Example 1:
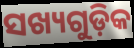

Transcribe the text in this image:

ସଖ୍ୟଗୁଡ଼ିକ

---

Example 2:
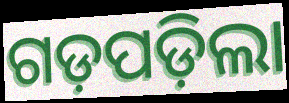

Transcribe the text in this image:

ଗଡ଼ପଡ଼ିଲା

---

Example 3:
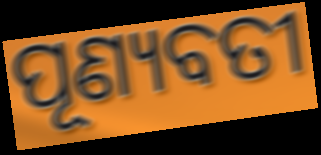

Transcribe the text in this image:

ପୂଣ୍ୟବତୀ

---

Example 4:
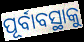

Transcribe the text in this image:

ପୂର୍ବାବସ୍ଥାକୁ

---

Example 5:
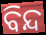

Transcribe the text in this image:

ବିନ୍ଦ